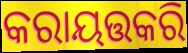
କରାୟତ୍ତକରି